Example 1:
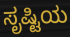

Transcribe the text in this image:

ಸೃಷ್ಟಿಯ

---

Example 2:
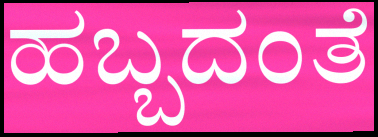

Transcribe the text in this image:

ಹಬ್ಬದಂತೆ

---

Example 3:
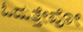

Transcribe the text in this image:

ಓದುತ್ತೇವೋ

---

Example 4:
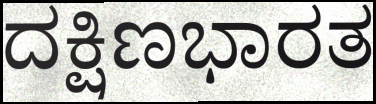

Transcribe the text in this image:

ದಕ್ಷಿಣಭಾರತ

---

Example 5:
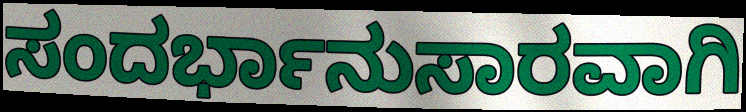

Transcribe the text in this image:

ಸಂದರ್ಭಾನುಸಾರವಾಗಿ